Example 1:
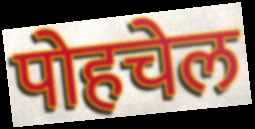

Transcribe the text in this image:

पोहचेल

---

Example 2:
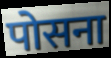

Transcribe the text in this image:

पोसना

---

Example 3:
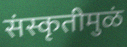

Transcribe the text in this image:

संस्कृतीमुळं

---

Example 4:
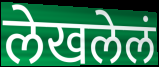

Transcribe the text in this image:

लेखलेलं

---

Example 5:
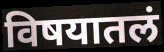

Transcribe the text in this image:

विषयातलं